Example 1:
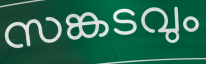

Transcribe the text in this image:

സങ്കടവും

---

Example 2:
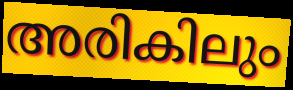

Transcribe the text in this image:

അരികിലും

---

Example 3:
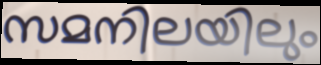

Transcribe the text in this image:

സമനിലയിലും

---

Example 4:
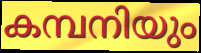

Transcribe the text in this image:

കമ്പനിയും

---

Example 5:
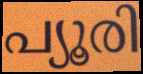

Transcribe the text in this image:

പ്യൂരി